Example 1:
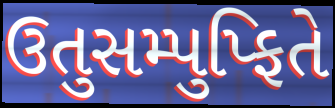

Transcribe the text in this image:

ઉતુસમ્પુપ્ફિતે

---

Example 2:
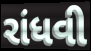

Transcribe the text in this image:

રાંધવી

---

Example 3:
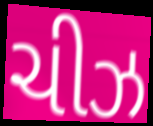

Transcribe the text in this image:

ચીઝ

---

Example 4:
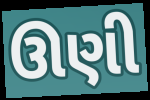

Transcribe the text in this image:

ઊણી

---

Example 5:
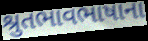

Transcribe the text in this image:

શ્રુતભાવભાષાના